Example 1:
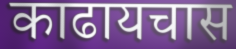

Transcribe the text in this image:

काढायचास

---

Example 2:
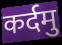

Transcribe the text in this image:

कर्दमु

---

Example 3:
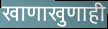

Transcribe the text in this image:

खाणाखुणाही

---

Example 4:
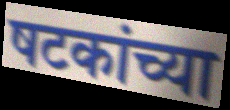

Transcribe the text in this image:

षटकांच्या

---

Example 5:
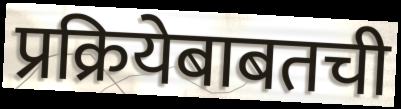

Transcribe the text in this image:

प्रक्रियेबाबतची